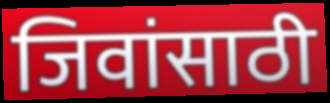
जिवांसाठी